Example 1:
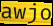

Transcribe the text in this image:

awjo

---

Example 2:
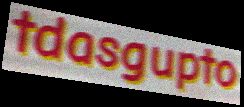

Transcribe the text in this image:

tdasgupto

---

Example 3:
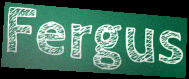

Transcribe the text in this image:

Fergus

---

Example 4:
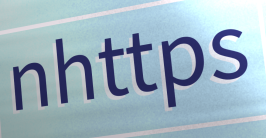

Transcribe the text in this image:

nhttps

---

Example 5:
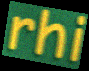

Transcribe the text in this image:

rhi